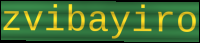
zvibayiro